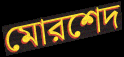
মোরশেদ